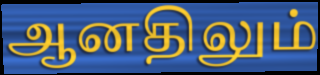
ஆனதிலும்